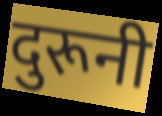
दुरूनी